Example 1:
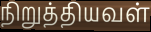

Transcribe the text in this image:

நிறுத்தியவள்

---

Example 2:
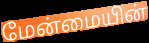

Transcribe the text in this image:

மேன்மையின்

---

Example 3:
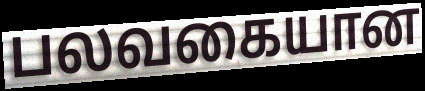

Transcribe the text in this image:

பலவகையான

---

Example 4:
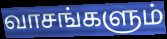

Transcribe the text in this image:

வாசங்களும்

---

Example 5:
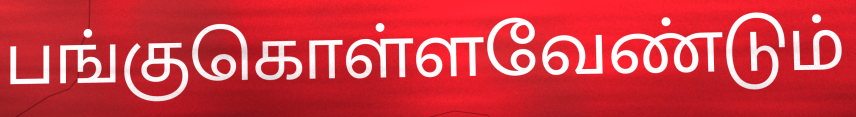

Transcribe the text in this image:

பங்குகொள்ளவேண்டும்